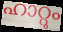
ഹാറ്റും